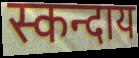
स्कन्दाय